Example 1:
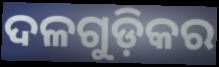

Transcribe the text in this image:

ଦଳଗୁଡ଼ିକର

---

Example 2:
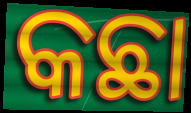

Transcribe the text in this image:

କଛା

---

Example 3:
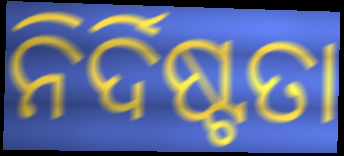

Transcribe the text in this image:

ନିର୍ଦିଷ୍ଟତା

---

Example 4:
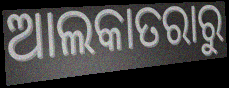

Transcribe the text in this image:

ଆଲକାତରାରୁ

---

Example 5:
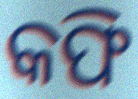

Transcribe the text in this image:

କଫି